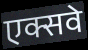
एक्सवे